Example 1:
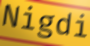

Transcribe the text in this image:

Nigdi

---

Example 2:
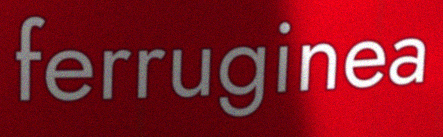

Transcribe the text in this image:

ferruginea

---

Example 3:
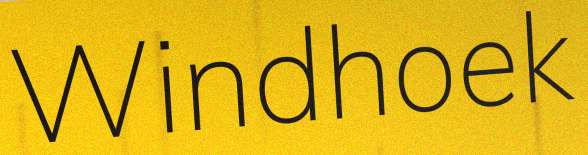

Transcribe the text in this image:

Windhoek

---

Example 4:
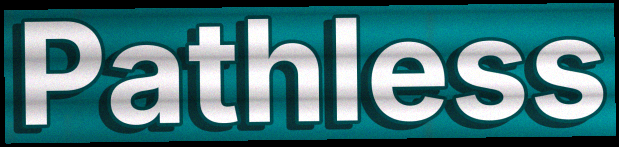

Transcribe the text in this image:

Pathless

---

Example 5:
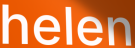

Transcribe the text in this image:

helen